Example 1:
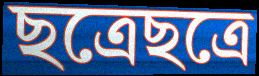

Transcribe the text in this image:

ছত্রেছত্রে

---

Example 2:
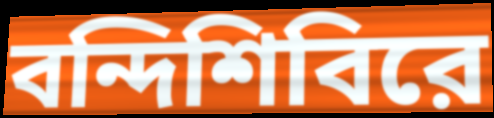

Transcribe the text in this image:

বন্দিশিবিরে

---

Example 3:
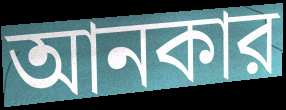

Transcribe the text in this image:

আনকার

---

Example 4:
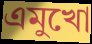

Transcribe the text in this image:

এমুখো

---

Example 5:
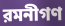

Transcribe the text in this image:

রমনীগণ